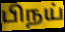
பிநய்